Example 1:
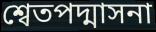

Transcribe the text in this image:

শ্বেতপদ্মাসনা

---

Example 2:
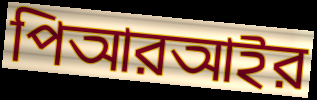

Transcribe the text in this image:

পিআরআইর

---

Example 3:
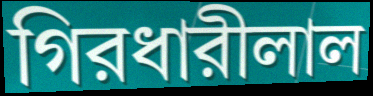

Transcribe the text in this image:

গিরধারীলাল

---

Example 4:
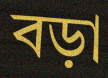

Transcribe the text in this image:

বড়া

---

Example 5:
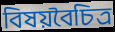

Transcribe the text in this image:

বিষয়বৈচিত্র